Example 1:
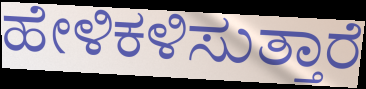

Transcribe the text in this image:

ಹೇಳಿಕಳಿಸುತ್ತಾರೆ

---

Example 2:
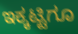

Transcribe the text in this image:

ಇಕ್ಕಟ್ಟಿಗೂ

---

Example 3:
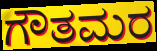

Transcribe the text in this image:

ಗೌತಮರ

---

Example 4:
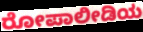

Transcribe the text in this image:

ರೋಪಾಲೀಡಿಯ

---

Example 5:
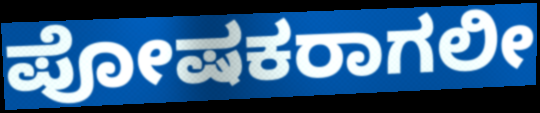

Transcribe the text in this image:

ಪೋಷಕರಾಗಲೀ